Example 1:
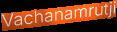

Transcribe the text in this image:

Vachanamrutji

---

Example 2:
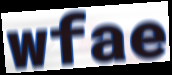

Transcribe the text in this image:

wfae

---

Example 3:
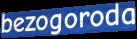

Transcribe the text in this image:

bezogoroda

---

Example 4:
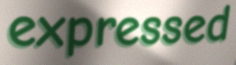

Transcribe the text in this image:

expressed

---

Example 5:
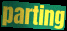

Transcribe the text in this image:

parting